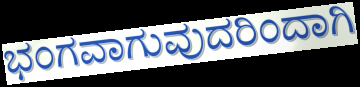
ಭಂಗವಾಗುವುದರಿಂದಾಗಿ